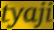
tyaji